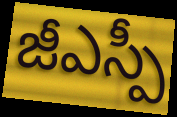
జీఎస్పీ